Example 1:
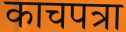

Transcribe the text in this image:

काचपत्रा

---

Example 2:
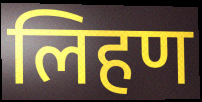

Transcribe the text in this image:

लिहण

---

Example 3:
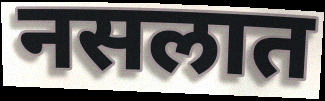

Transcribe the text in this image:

नसलात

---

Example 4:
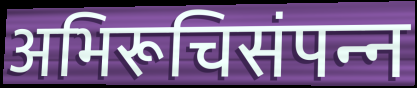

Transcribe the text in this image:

अभिरूचिसंपन्न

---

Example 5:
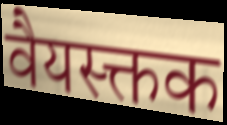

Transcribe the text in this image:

वैयस्क्तक